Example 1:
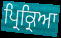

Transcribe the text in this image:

ਪ੍ਰਿਕ੍ਰਿਆ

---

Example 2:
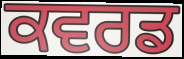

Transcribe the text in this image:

ਕਵਰਡ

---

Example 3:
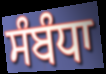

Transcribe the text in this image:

ਸੰਬੰਧਾ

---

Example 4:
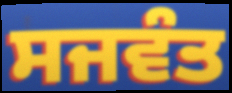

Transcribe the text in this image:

ਸਜਵੰਤ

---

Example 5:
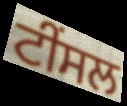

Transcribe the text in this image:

ਟੀਂਸਲ